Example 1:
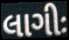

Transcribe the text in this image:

લાગીઃ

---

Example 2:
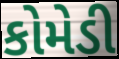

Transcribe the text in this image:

કોમેડી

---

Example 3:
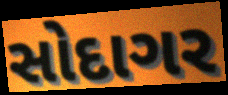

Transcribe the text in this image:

સોદાગર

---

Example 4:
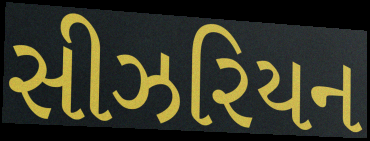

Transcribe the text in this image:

સીઝરિયન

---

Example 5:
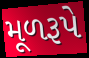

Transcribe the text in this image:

મૂળરૂપે